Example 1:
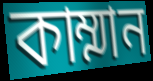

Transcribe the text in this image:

কাম্মান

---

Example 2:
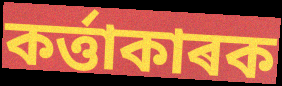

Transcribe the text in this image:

কৰ্ত্তাকাৰক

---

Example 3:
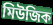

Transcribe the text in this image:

মিউজিক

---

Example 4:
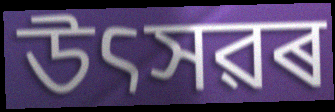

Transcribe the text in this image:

উৎসৱৰ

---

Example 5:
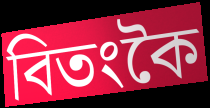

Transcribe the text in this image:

বিতংকৈ